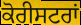
ਕੋਰੀਸਟਰਾਂ